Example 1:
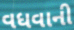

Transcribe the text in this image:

વધવાની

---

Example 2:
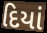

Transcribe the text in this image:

દિયાં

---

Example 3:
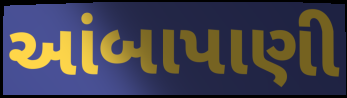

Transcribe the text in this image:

આંબાપાણી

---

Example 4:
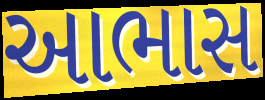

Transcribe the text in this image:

આભાસ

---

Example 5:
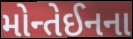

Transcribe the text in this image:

મોન્તેઈનના